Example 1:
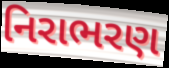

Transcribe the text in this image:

નિરાભરણ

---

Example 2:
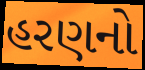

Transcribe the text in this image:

હરણનો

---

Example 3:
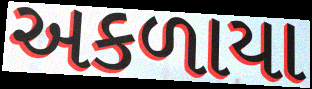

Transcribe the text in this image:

અકળાયા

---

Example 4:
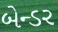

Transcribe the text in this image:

બેન્ડર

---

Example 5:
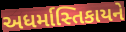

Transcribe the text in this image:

અધર્માસ્તિકાયને